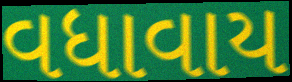
વધાવાય